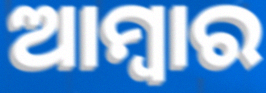
ଆମ୍ବାର